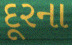
દૂરના